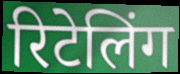
रिटेलिंग